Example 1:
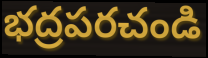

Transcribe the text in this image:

భద్రపరచండి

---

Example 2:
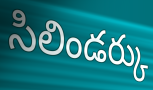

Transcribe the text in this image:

సిలిండర్కు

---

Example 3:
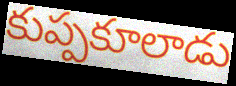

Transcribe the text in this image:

కుప్పకూలాడు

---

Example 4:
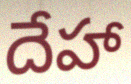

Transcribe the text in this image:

దేహా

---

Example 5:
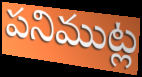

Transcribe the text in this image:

పనిముట్ల